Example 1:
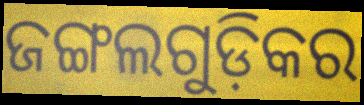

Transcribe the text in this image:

ଜଙ୍ଗଲଗୁଡ଼ିକର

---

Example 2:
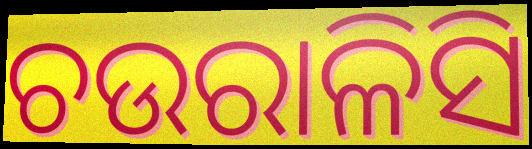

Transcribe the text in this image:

ଚଉରାଳିସି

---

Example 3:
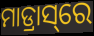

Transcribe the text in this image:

ମାଡ୍ରାସ୍‌ରେ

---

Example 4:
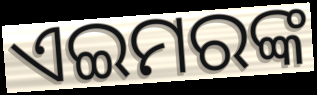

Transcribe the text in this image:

ଏଇମରଙ୍କ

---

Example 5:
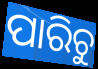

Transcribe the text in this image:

ପାରିଚୁ